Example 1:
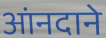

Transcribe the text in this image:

आंनदाने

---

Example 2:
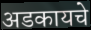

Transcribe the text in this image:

अडकायचे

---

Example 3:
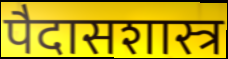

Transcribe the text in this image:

पैदासशास्त्र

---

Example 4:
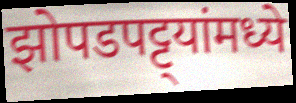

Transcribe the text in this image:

झोपडपट्ट्यांमध्ये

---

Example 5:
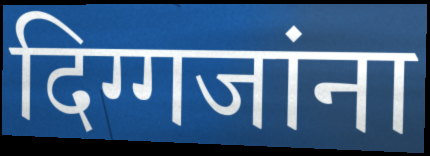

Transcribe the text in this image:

दिग्गजांना